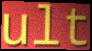
ult